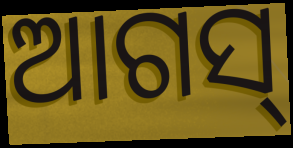
ଆଗସ୍